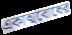
একাত্মবোধের